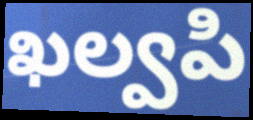
ఖల్వపి